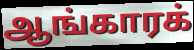
ஆங்காரக்